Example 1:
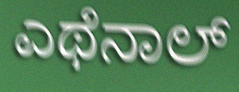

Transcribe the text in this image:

ಎಥೆನಾಲ್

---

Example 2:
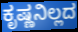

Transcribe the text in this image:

ಕೃಷ್ಣನಿಲ್ಲದ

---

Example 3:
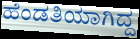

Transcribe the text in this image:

ಹೆಂಡತಿಯಾಗಿದ್ದ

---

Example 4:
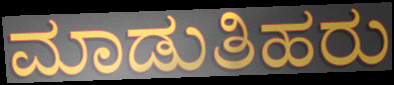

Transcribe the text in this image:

ಮಾಡುತಿಹರು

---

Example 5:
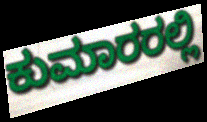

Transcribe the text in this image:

ಕುಮಾರರಲ್ಲಿ